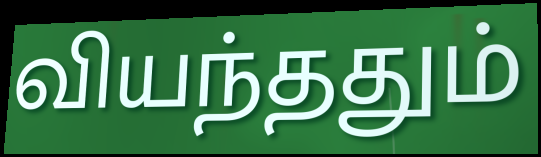
வியந்ததும்